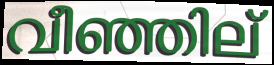
വീഞ്ഞില്